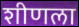
शीणला